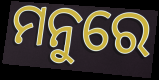
ମନୁରେ